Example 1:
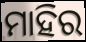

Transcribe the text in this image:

ମାହିର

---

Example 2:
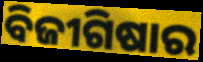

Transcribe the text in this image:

ବିଜୀଗିଷାର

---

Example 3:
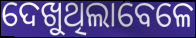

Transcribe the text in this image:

ଦେଖୁଥିଲାବେଳେ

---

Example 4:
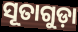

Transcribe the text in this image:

ସୂତାଗୁଡ଼ା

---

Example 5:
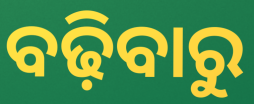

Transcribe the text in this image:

ବଢ଼ିବାରୁ